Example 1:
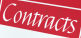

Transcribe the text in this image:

Contracts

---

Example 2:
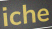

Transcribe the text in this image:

iche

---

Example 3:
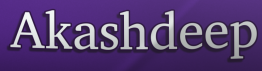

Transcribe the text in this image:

Akashdeep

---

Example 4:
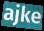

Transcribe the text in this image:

ajke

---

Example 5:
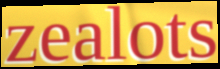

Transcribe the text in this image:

zealots